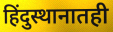
हिंदुस्थानातही